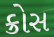
ક્રોસ